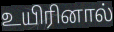
உயிரினால்